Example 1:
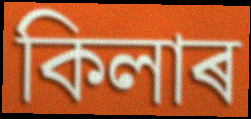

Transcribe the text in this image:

কিলাৰ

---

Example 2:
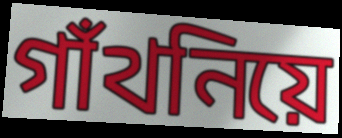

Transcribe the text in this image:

গাঁথনিয়ে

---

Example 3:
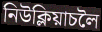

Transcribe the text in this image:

নিউক্লিয়াচলৈ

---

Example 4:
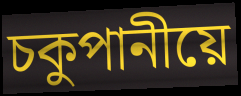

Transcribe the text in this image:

চকুপানীয়ে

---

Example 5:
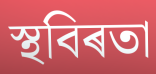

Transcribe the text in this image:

স্থবিৰতা